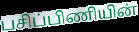
பசிப்பிணியின்